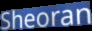
Sheoran